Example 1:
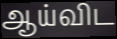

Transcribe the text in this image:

ஆய்விட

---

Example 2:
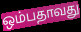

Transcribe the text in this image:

ஒம்பதாவது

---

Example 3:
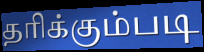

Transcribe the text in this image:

தரிக்கும்படி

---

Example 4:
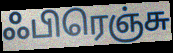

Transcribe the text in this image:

ஃபிரெஞ்சு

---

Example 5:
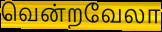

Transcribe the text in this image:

வென்றவேலா